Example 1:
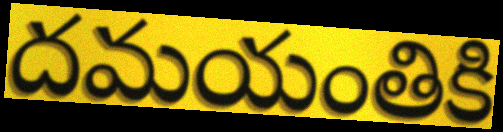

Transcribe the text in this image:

దమయంతికి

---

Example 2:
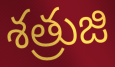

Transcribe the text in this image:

శత్రుజి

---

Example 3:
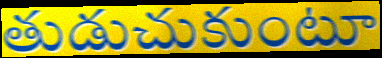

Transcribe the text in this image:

తుడుచుకుంటూ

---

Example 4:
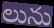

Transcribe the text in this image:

లును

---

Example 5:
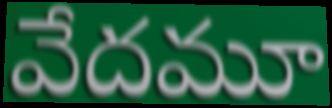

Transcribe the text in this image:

వేదమూ